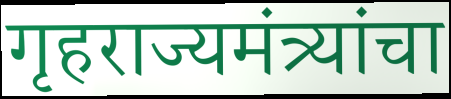
गृहराज्यमंत्र्यांचा